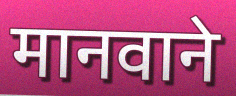
मानवाने